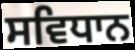
ਸਵਿਧਾਨ